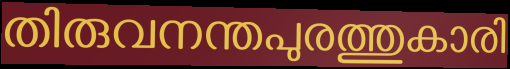
തിരുവനന്തപുരത്തുകാരി